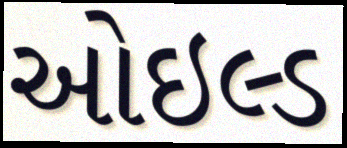
ઓઇલ્ડ